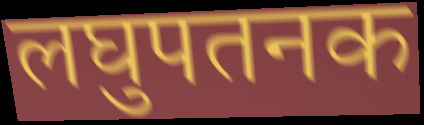
लघुपतनक